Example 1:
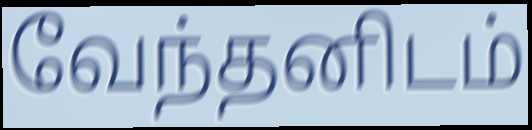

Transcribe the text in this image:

வேந்தனிடம்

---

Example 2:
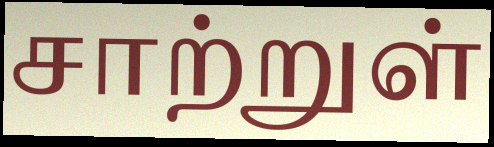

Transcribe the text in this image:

சாற்றுள்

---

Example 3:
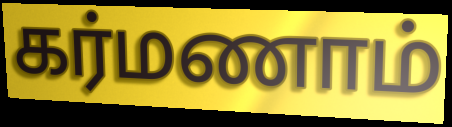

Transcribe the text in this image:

கர்மணாம்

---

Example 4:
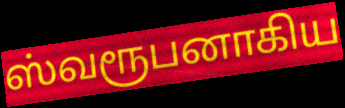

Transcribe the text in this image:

ஸ்வரூபனாகிய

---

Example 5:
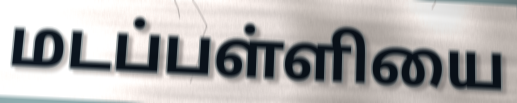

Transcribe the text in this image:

மடப்பள்ளியை